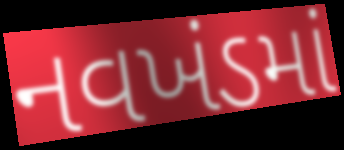
નવખંડમાં